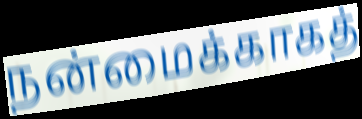
நன்மைக்காகத்